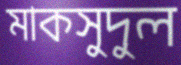
মাকসুদুল